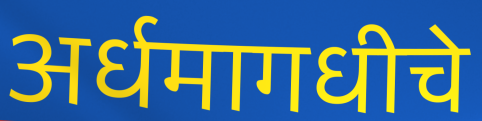
अर्धमागधीचे